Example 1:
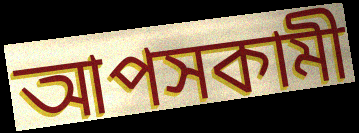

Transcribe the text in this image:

আপসকামী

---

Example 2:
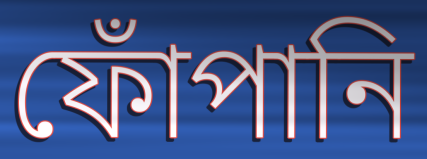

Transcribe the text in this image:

ফোঁপানি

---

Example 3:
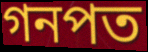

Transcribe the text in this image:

গনপত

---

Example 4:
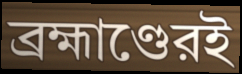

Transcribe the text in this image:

ব্রহ্মাণ্ডেরই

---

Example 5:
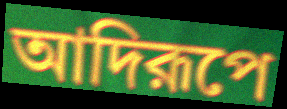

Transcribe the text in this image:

আদিরূপে